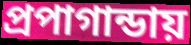
প্রপাগান্ডায়